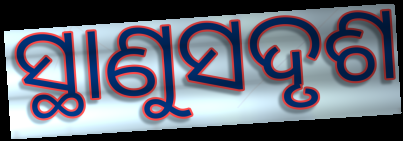
ସ୍ଥାଣୁସଦୃଶ